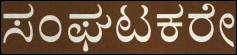
ಸಂಘಟಕರೇ